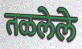
तळलेले